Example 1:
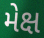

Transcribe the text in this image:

મેક્ષ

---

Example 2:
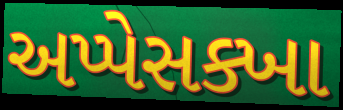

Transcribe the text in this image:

અપ્પેસક્ખા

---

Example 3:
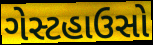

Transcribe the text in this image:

ગેસ્ટહાઉસો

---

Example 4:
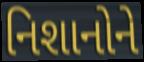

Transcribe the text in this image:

નિશાનોને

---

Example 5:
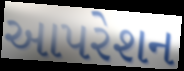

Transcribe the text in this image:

આપરેશન